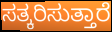
ಸತ್ಕರಿಸುತ್ತಾರೆ